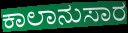
ಕಾಲಾನುಸಾರ